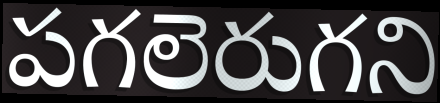
పగలెరుగని